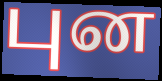
புன